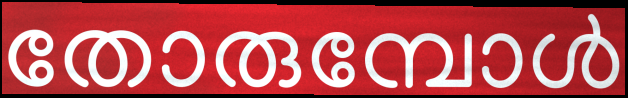
തോരുമ്പോൾ